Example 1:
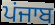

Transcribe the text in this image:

ਪਂਜਾਬ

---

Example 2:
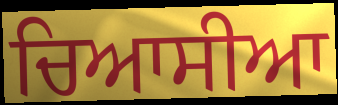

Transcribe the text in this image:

ਚਿਆਸੀਆ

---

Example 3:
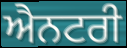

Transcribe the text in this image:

ਐਨਟਰੀ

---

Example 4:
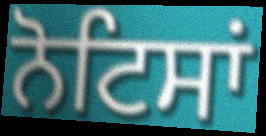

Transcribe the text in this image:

ਨੋਟਿਸਾਂ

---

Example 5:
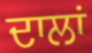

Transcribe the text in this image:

ਦਾਲਾਂ